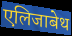
एलिजाबेथ